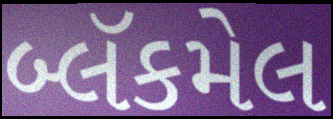
બ્લૅકમેલ